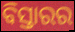
ବିସ୍ତାରର